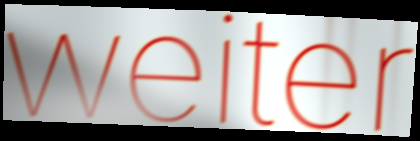
weiter